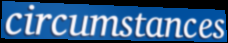
circumstances